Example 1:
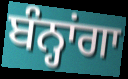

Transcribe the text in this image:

ਬੰਨ੍ਹਾਂਗਾ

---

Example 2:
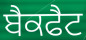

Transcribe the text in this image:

ਬੈਕਫੈਟ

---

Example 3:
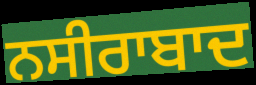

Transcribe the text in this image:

ਨਸੀਰਾਬਾਦ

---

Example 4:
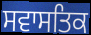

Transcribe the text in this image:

ਸਵਾਸਤਿਕ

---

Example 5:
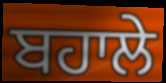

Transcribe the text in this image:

ਬਹਾਲੇ